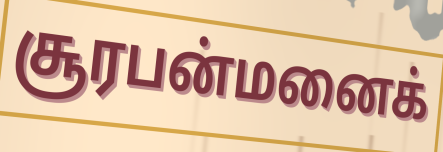
சூரபன்மனைக்